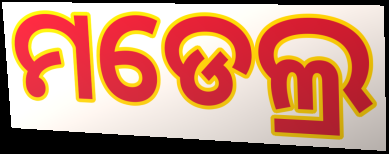
ମଡେଲ୍ର